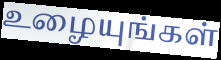
உழையுங்கள்